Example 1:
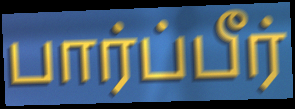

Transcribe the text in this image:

பார்ப்பீர்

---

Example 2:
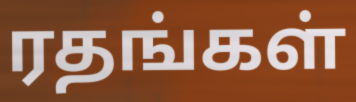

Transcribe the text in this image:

ரதங்கள்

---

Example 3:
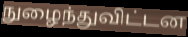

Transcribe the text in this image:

நுழைந்துவிட்டன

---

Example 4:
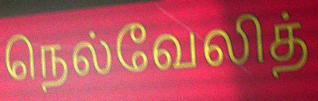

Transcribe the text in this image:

நெல்வேலித்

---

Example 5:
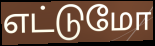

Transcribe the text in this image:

எட்டுமோ